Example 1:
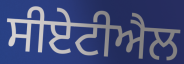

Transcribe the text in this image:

ਸੀਏਟੀਐਲ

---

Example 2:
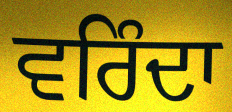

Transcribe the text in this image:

ਵਰਿੰਦਾ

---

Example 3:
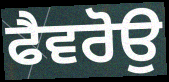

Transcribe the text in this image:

ਫੈਵਰੋਉ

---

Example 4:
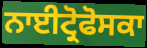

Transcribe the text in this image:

ਨਾਈਟ੍ਰੋਫੋਸਕਾ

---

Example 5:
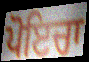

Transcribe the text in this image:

ਪੋਇਚਾ